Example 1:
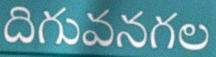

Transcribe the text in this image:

దిగువనగల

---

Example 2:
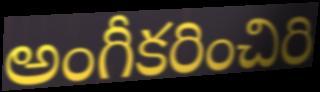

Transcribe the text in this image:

అంగీకరించిరి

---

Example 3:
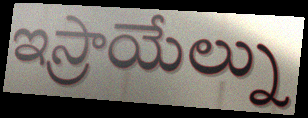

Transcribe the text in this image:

ఇస్రాయేల్ను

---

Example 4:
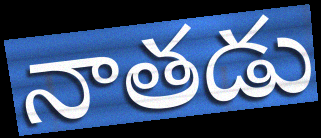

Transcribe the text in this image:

నాతడు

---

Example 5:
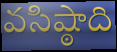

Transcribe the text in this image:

వసిష్ఠాది